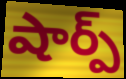
షార్ప్